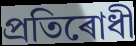
প্ৰতিৰোধী